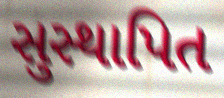
સુસ્થાપિત